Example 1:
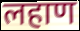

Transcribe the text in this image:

लहाण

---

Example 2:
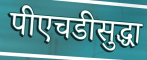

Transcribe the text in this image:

पीएचडीसुद्धा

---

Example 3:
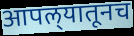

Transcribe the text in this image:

आपल्यातूनच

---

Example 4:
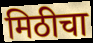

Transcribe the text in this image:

मिठीचा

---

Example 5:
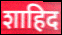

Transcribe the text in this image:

शाहिद